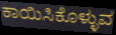
ಕಾಯಿಸಿಕೊಳ್ಳುವ